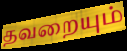
தவறையும்